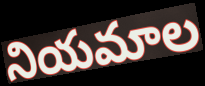
నియమాల